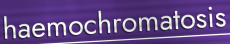
haemochromatosis